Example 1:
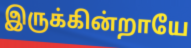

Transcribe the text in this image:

இருக்கின்றாயே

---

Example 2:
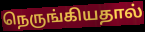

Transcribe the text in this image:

நெருங்கியதால்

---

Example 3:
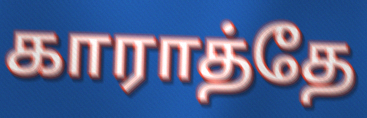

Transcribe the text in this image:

காராத்தே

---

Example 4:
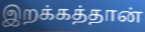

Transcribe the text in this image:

இறக்கத்தான்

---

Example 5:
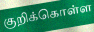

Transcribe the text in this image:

குறிக்கொள்ள